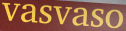
vasvaso